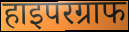
हाइपरग्राफ